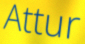
Attur